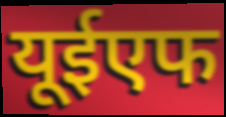
यूईएफ